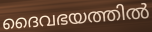
ദൈവഭയത്തിൽ